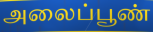
அலைப்பூண்